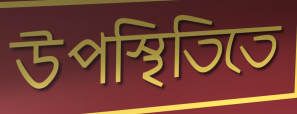
উপস্থিতিতে